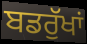
ਬਡਰੁੱਖਾਂ